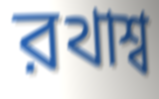
রথাশ্ব